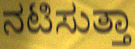
ನಟಿಸುತ್ತಾ